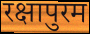
रक्षापुरम